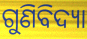
ଗୁଣିବିଦ୍ୟା